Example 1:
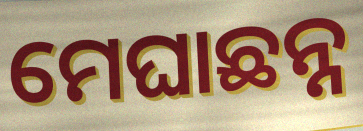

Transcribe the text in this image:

ମେଘାଛନ୍ନ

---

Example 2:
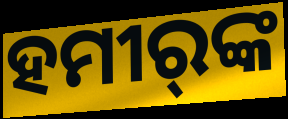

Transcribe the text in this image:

ହମୀର୍‍ଙ୍କ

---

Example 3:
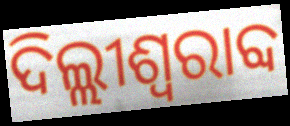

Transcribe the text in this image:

ଦିଲ୍ଲୀଶ୍ୱରାବ୍ଦ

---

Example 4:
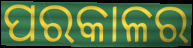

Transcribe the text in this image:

ପରକାଳର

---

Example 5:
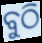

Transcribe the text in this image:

ବୁଠି